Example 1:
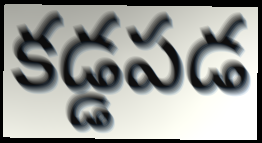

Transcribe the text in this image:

కడ్డపడ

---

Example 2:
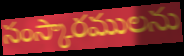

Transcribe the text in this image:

సంస్కారములను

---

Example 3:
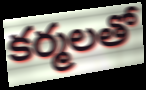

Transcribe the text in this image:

కర్మలతో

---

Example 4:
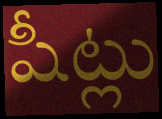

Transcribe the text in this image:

షీట్లు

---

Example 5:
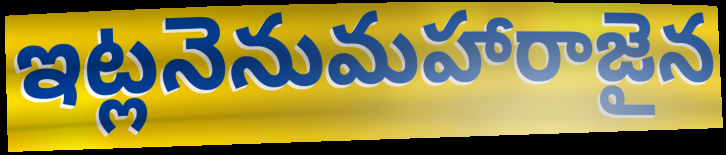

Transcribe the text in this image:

ఇట్లనెనుమహారాజైన